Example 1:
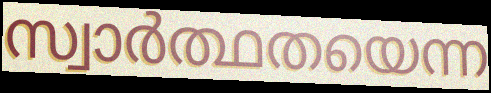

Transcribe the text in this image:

സ്വാർത്ഥതയെന്ന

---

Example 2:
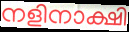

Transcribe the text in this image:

നളിനാക്ഷി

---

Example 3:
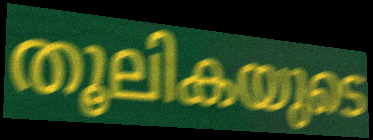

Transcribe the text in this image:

തൂലികയുടെ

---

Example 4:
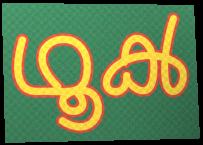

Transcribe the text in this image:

ഥൂൿ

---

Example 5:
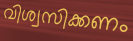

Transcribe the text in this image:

വിശ്വസിക്കണം